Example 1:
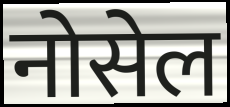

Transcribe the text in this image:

नोसेल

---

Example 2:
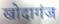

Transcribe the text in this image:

खोदागंज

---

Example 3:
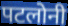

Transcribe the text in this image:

पटलोनी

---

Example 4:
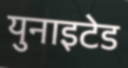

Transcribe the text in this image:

युनाइटेड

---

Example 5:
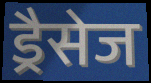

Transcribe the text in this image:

ड्रैसेज